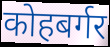
कोहबर्गर